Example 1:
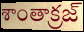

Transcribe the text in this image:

శాంతాక్రజ్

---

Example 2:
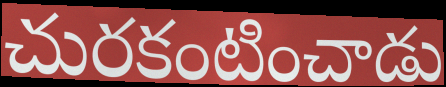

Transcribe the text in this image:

చురకంటించాడు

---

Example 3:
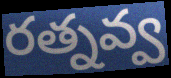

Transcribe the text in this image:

రత్నవ్వ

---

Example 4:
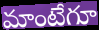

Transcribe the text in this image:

మాంటేగూ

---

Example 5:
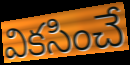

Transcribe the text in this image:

వికసించే